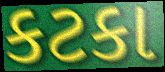
કટકા